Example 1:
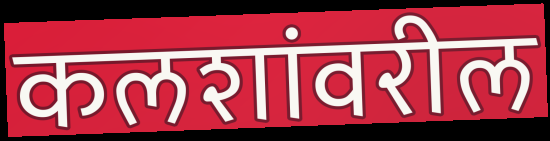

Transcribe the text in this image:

कलशांवरील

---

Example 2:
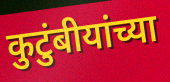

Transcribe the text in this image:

कुटुंबीयांच्या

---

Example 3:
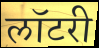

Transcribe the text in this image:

लॉटरी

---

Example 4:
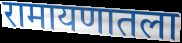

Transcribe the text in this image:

रामायणातला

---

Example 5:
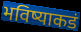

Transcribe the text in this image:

भविष्याकडं